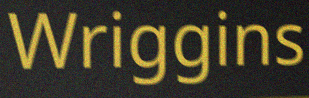
Wriggins